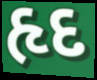
હૃદ